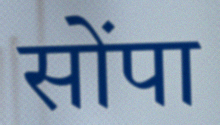
सोंपा